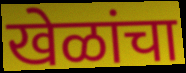
खेळांचा